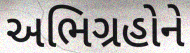
અભિગ્રહોને